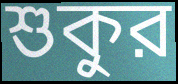
শুকুর